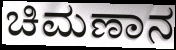
ಚಿಮಣಾನ